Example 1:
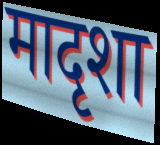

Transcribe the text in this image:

मादृशा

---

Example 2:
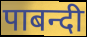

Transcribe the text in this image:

पाबन्दी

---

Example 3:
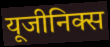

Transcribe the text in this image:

यूजीनिक्स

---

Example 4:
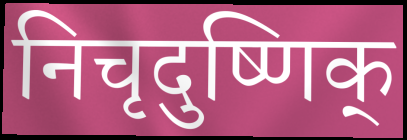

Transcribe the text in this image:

निचृदुष्णिक्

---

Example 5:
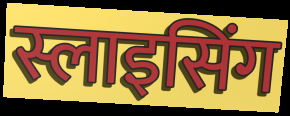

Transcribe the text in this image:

स्लाइसिंग